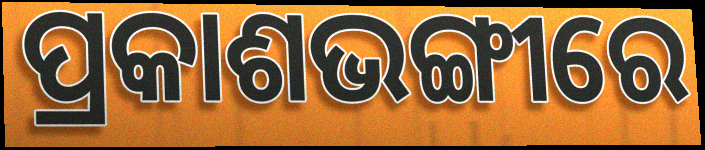
ପ୍ରକାଶଭଙ୍ଗୀରେ